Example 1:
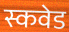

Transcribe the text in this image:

स्कवेड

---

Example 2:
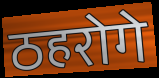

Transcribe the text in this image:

ठहरोगे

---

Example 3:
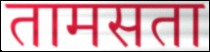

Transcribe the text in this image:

तामसता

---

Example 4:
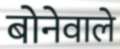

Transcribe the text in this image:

बोनेवाले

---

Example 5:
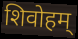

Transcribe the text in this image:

शिवोहम्